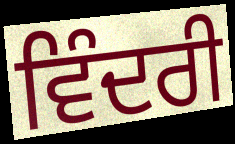
ਵਿੰਦਰੀ